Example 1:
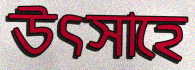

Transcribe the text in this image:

উৎসাহে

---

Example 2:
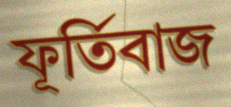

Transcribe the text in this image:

ফূর্তিবাজ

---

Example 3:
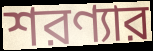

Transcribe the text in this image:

শরণ্যার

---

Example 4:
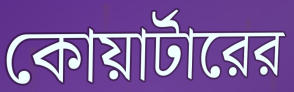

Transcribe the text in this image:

কোয়ার্টারের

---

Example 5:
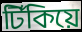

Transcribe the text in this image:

টিঁকিয়ে